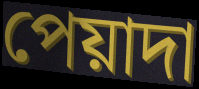
পেয়াদা